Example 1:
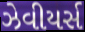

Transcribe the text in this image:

ઝેવીયર્સ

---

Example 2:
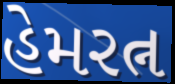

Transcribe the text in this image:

હેમરત્ન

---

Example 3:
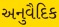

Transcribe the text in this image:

અનુવૈદિક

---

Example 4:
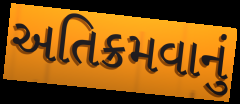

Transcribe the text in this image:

અતિક્રમવાનું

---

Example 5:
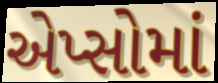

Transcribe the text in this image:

એપ્સોમાં